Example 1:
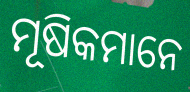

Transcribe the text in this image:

ମୂଷିକମାନେ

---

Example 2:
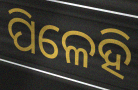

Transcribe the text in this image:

ପିଳେହି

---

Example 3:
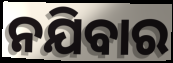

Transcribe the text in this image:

ନଯିବାର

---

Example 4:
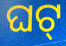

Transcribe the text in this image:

ଘଟ୍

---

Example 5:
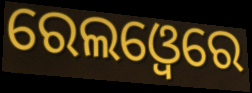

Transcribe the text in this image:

ରେଲଓ୍ୱେରେ